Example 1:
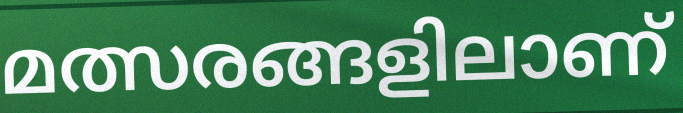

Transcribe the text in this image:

മത്സരങ്ങളിലാണ്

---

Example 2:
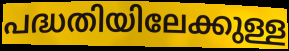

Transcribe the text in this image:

പദ്ധതിയിലേക്കുള്ള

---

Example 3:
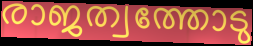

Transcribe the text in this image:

രാജത്വത്തോടു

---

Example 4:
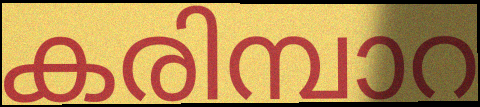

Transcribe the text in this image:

കരിമ്പാറ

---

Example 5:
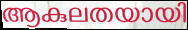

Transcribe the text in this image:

ആകുലതയായി